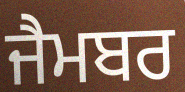
ਜੈਮਬਰ